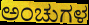
ಅಂಚುಗಳ